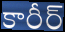
కారీర్